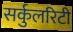
सर्कुलरिटी